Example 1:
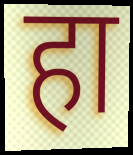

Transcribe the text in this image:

हा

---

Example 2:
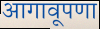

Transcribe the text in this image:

आगावूपणा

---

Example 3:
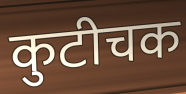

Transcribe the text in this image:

कुटीचक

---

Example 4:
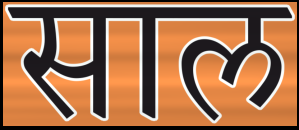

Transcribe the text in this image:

साल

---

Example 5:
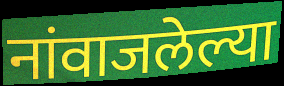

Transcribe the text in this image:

नांवाजलेल्या